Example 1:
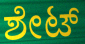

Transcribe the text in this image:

ಶೇಟ್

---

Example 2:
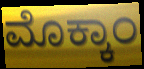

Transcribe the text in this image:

ಮೊಕ್ಕಾಂ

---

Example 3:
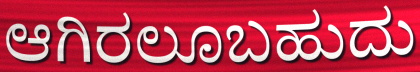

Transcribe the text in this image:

ಆಗಿರಲೂಬಹುದು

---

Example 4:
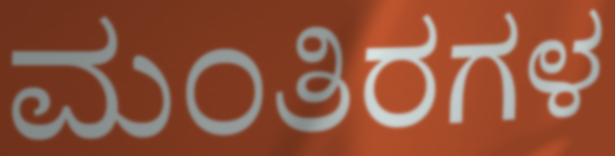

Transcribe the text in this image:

ಮಂತಿರಗಳ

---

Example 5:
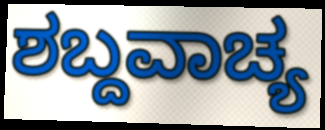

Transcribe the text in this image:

ಶಬ್ದವಾಚ್ಯ